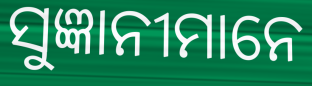
ସୁଜ୍ଞାନୀମାନେ